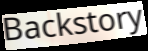
Backstory